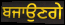
ਬਜਾਉਣਗੇ